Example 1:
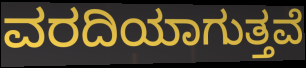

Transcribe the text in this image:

ವರದಿಯಾಗುತ್ತವೆ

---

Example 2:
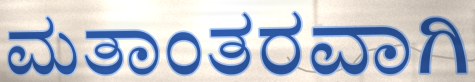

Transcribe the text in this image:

ಮತಾಂತರವಾಗಿ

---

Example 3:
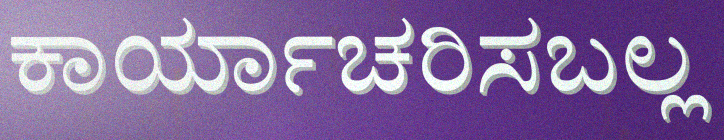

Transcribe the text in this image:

ಕಾರ್ಯಾಚರಿಸಬಲ್ಲ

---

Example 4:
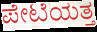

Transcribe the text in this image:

ಪೇಟೆಯತ್ತ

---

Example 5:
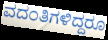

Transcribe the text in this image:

ವದಂತಿಗಳಿದ್ದರೂ